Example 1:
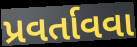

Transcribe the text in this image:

પ્રવર્તાવવા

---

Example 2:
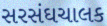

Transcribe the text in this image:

સરસંઘચાલક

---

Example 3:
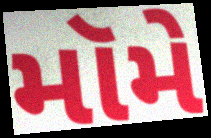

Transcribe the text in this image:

મૉમે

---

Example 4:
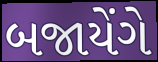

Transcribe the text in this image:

બજાયેંગે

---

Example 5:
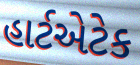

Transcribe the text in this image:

હાર્ટએટેક